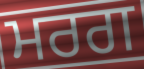
ਮਰਗ